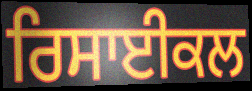
ਰਿਸਾਈਕਲ